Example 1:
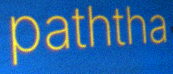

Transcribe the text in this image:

paththa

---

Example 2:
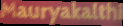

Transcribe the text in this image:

Mauryakalthi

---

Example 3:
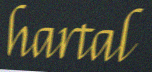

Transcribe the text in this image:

hartal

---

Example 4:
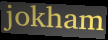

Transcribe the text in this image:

jokham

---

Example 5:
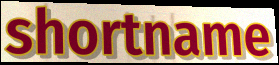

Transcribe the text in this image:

shortname